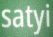
satyi